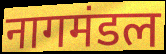
नागमंडल